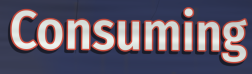
Consuming